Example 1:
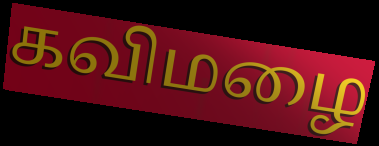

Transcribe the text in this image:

கவிமழை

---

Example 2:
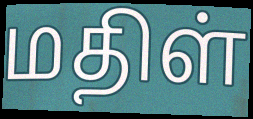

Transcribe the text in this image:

மதிள்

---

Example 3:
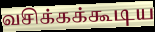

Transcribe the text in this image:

வசிக்கக்கூடிய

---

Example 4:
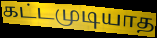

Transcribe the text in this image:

கட்டமுடியாத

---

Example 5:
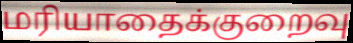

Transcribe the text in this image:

மரியாதைக்குறைவு